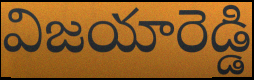
విజయారెడ్డి